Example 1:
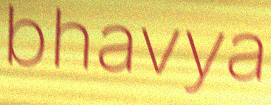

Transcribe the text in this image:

bhavya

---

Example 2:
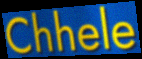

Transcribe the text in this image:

Chhele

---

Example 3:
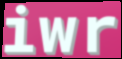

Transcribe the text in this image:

iwr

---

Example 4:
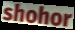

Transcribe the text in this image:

shohor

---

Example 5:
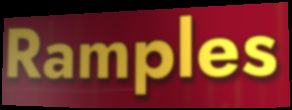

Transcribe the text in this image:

Ramples